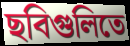
ছবিগুলিতে